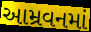
આમ્રવનમાં